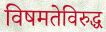
विषमतेविरुद्ध